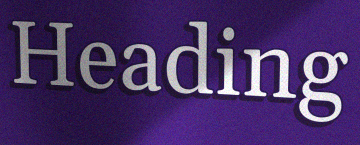
Heading